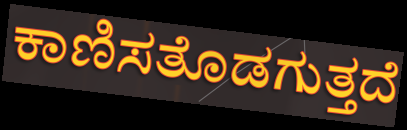
ಕಾಣಿಸತೊಡಗುತ್ತದೆ